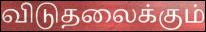
விடுதலைக்கும்